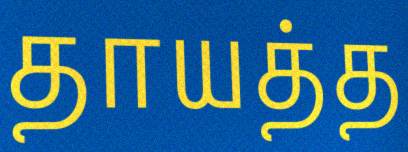
தாயத்த